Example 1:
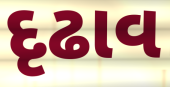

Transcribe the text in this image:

દૃઢાવ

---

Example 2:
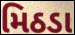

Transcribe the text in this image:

મિઠડા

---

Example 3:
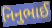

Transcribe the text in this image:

નિનુભાઈ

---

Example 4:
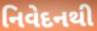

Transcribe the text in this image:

નિવેદનથી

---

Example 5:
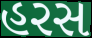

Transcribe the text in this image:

હરસ